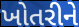
ખોતરીને